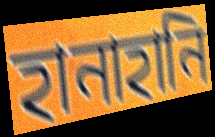
হানাহানি